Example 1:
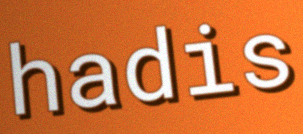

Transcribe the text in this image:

hadis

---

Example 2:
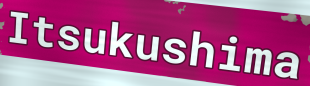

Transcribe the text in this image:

Itsukushima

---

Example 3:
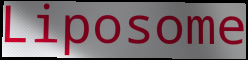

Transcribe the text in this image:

Liposome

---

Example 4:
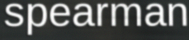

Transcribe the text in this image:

spearman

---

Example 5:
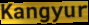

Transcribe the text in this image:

Kangyur